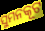
ସୁମନକୂଟ